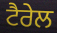
ਟੈਰੇਲ